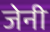
जेनी